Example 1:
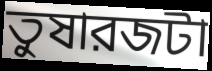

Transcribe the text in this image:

তুষারজটা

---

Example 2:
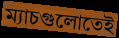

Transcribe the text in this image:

ম্যাচগুলোতেই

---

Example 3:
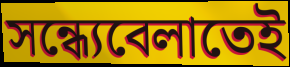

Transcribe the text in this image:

সন্ধ্যেবেলাতেই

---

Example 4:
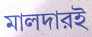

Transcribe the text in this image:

মালদারই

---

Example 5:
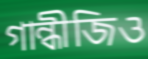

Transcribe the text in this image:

গান্ধীজিও